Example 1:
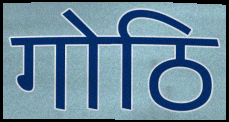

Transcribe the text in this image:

गोठि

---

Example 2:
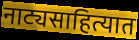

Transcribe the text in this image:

नाट्यसाहित्यात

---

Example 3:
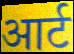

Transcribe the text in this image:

आर्ट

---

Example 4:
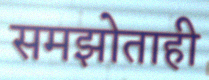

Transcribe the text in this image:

समझोताही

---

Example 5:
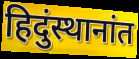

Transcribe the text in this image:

हिदुंस्थानांत